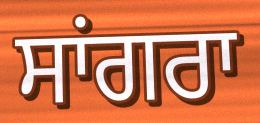
ਸਾਂਗਰਾ